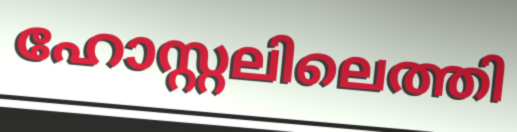
ഹോസ്റ്റലിലെത്തി